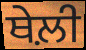
ਥੇਲ਼ੀ